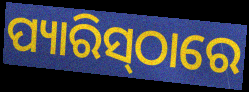
ପ୍ୟାରିସ୍‍ଠାରେ